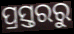
ପ୍ରସ୍ତରରୁ